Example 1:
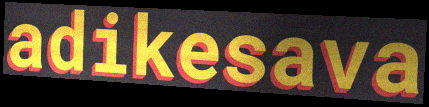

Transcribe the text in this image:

adikesava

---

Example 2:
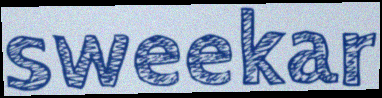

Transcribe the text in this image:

sweekar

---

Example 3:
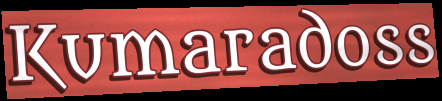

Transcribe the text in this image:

Kumaradoss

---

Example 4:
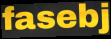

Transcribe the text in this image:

fasebj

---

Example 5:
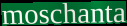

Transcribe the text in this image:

moschanta